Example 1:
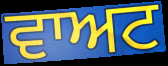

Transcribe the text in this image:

ਵਾਅਟ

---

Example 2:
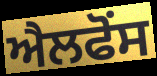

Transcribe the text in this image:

ਐਲਫੋਂਸ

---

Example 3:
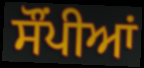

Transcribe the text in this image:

ਸੌਂਪੀਆਂ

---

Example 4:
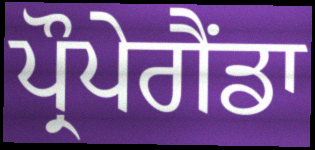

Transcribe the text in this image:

ਪ੍ਰੌਪੇਗੈਂਡਾ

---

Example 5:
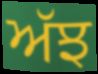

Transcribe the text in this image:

ਅੱਝ